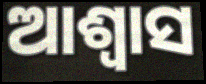
ଆଶ୍ୱାସ